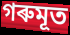
গৰুমূত